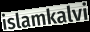
islamkalvi